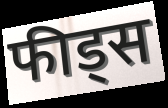
फीड्स